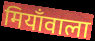
मियाँवाला